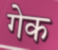
गेक